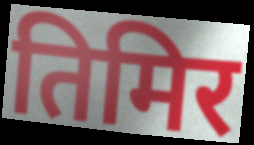
तिमिर